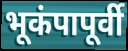
भूकंपापूर्वी